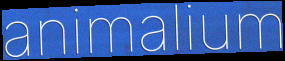
animalium